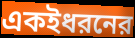
একইধরনের